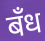
बँध